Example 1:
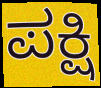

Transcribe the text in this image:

ಪಕ್ಷಿ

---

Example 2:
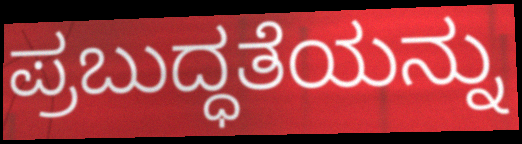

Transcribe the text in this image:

ಪ್ರಬುದ್ಧತೆಯನ್ನು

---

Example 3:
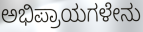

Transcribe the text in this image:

ಅಭಿಪ್ರಾಯಗಳೇನು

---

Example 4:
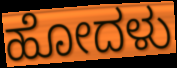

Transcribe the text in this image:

ಹೋದಳು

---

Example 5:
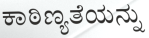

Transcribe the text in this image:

ಕಾಠಿಣ್ಯತೆಯನ್ನು